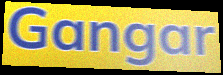
Gangar